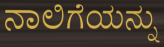
ನಾಲಿಗೆಯನ್ನು